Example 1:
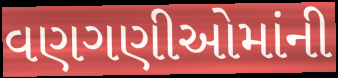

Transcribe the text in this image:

વણગણીઓમાંની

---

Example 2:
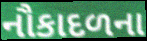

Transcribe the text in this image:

નૌકાદળના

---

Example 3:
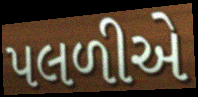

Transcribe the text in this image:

પલળીએ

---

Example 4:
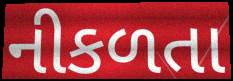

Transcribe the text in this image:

નીકળતા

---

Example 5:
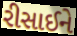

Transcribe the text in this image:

રીસાઈને